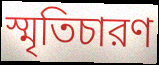
স্মৃতিচারণ